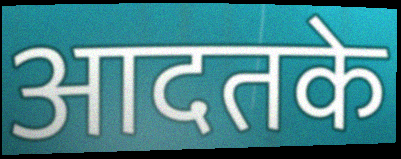
आदतके